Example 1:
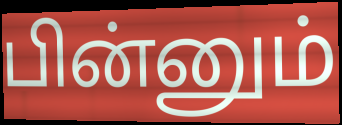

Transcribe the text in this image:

பின்னும்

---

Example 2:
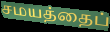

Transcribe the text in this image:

சமயத்தைப்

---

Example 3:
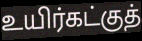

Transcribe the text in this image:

உயிர்கட்குத்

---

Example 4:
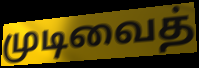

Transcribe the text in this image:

முடிவைத்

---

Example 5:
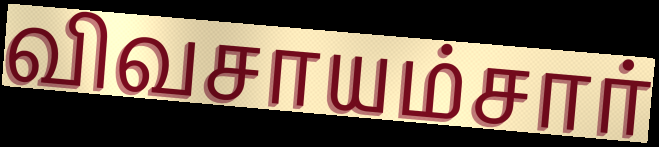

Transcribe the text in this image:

விவசாயம்சார்